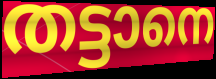
തട്ടാനെ